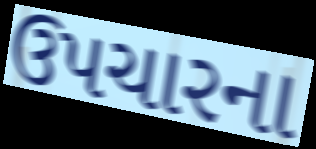
ઉપચારના